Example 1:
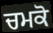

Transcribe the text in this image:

ਚਮਕੋ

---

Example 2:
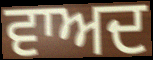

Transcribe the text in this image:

ਵਾਅਦ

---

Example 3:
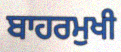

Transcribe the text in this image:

ਬਾਹਰਮੁਖੀ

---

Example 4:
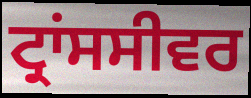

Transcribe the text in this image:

ਟ੍ਰਾਂਸਸੀਵਰ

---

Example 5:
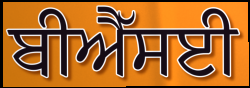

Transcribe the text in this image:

ਬੀਐੱਸਈ